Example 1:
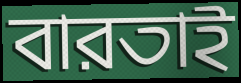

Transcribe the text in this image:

বারতাই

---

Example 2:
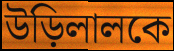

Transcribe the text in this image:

উড়িলালকে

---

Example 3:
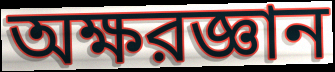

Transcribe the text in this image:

অক্ষরজ্ঞান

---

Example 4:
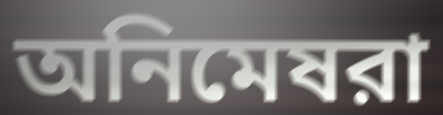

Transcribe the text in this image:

অনিমেষরা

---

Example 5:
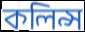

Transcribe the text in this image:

কলিন্স